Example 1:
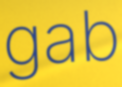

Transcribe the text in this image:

gab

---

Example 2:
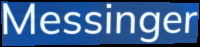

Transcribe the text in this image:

Messinger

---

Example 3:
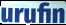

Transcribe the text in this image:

urufin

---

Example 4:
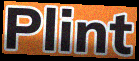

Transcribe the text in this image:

Plint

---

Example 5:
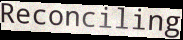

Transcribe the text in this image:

Reconciling